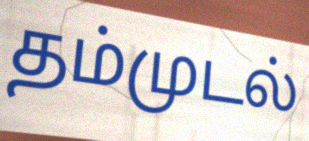
தம்முடல்